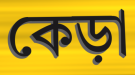
কেড়া